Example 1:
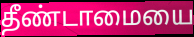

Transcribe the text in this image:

தீண்டாமையை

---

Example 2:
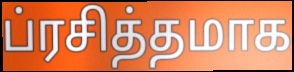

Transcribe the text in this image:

ப்ரசித்தமாக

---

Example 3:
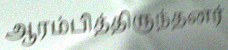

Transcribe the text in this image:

ஆரம்பித்திருந்தனர்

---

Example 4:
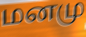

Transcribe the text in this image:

மனமு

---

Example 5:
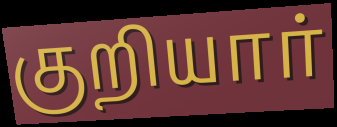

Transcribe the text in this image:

குறியார்